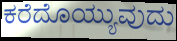
ಕರೆದೊಯ್ಯುವುದು